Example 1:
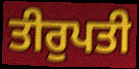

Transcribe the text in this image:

ਤੀਰੁਪਤੀ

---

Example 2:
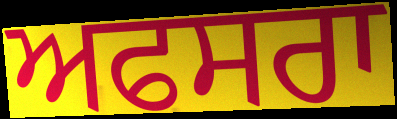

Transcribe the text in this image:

ਅਫਸਰਾ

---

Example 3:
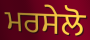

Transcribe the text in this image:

ਮਰਸੇਲੋ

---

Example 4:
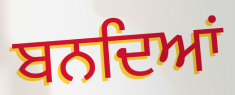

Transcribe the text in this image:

ਬਨਦਿਆਂ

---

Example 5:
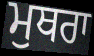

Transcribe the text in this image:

ਮੁਥਰਾ